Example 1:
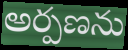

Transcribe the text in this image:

అర్పణను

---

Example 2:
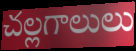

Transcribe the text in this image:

చల్లగాలులు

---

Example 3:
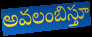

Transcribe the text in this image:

అవలంబిస్తూ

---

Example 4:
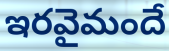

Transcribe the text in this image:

ఇరవైమందే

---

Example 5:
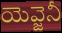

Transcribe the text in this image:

యెవ్జెనీ